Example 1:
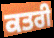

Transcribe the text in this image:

ਕਤਰੀ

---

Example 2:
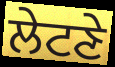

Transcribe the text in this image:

ਲੇਟਣੇ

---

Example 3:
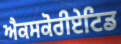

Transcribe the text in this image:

ਐਕਸਕੋਰੀਏਟਿਡ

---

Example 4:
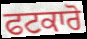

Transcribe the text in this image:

ਫਟਕਾਰੋ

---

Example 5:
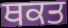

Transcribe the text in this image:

ਥਕਤ